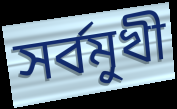
সর্বমুখী